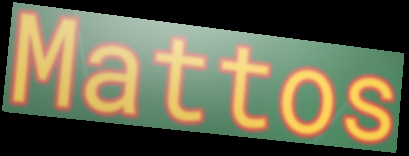
Mattos